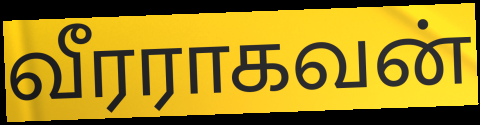
வீரராகவன்